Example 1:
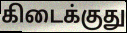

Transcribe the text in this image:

கிடைக்குது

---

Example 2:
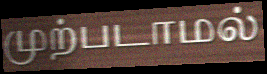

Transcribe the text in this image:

முற்படாமல்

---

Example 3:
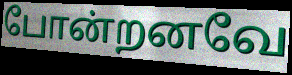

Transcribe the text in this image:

போன்றனவே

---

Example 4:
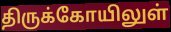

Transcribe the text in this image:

திருக்கோயிலுள்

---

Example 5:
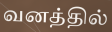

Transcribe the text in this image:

வனத்தில்